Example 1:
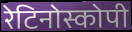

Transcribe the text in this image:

रेटिनोस्कोपी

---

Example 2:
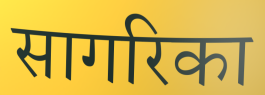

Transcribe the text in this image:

सागरिका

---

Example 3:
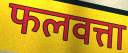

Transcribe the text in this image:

फलवत्ता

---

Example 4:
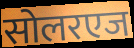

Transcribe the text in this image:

सोलरएज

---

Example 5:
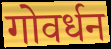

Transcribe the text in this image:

गोवर्धन